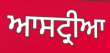
ਆਸਟ੍ਰੀਆ